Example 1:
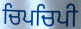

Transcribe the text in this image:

ਚਿਪਚਿਪੀ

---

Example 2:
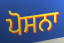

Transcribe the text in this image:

ਪੋਸਨਾ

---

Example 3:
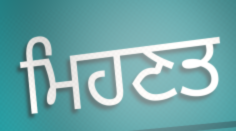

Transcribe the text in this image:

ਮਿਹਣਤ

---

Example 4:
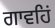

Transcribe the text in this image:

ਗਾਵਹਿਂ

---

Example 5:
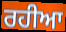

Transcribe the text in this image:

ਰਹੀਆ